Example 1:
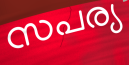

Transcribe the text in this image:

സപര്യ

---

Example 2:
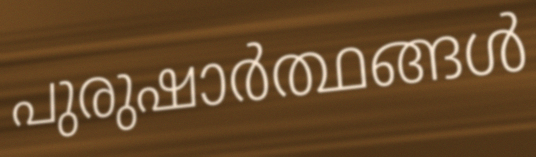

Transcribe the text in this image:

പുരുഷാർത്ഥങ്ങൾ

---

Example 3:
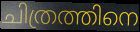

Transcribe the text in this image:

ചിത്രത്തിനെ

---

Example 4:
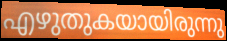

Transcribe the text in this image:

എഴുതുകയായിരുന്നു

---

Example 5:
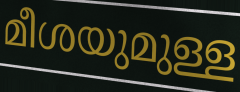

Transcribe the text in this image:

മീശയുമുള്ള